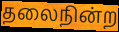
தலைநின்ற